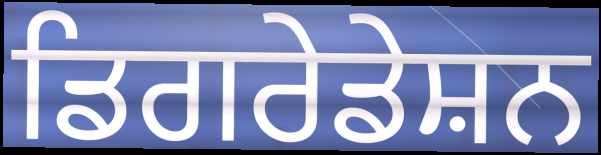
ਡਿਗਰੇਡੇਸ਼ਨ